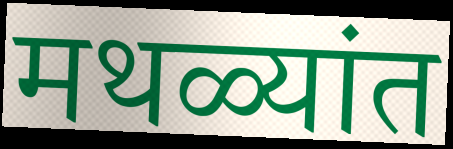
मथळ्यांत